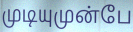
முடியுமுன்பே